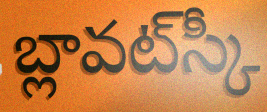
బ్లావట్‌స్కీ